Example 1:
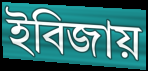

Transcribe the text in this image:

ইবিজায়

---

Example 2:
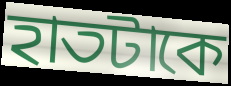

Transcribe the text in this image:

হাতটাকে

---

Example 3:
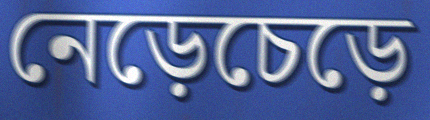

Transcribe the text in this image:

নেড়েচেড়ে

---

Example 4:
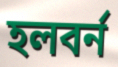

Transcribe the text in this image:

হলবর্ন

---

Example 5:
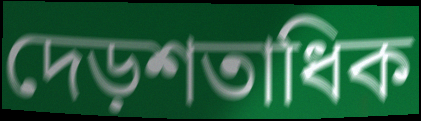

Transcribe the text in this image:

দেড়শতাধিক